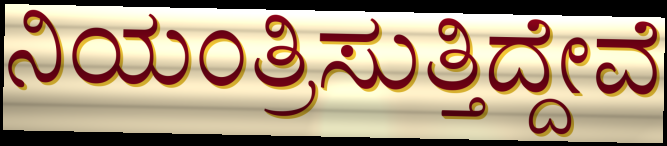
ನಿಯಂತ್ರಿಸುತ್ತಿದ್ದೇವೆ